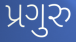
પ્રગુરુ